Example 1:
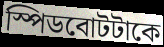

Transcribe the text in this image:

স্পিডবোটটাকে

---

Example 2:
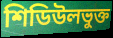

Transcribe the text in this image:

শিডিউলভুক্ত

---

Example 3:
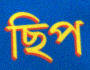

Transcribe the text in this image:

ছিপ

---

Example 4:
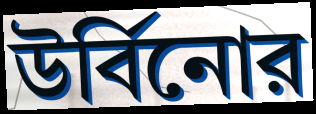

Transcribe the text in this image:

উর্বিনোর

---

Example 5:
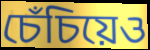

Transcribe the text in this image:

চেঁচিয়েও